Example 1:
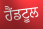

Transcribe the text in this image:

ਹੈਂਡਟੂਲ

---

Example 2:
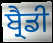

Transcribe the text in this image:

ਬ੍ਰੈਡੀ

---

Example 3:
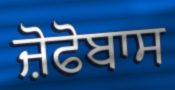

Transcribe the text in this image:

ਜ਼ੋਫੋਬਾਸ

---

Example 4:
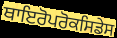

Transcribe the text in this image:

ਥਾਇਰੋਪਰੋਕਸਿਡੇਸ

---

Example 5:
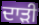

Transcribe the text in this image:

ਦਾੜੀ